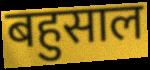
बहुसाल